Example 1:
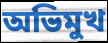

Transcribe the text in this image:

অভিমুখ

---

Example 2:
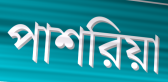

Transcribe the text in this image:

পাশরিয়া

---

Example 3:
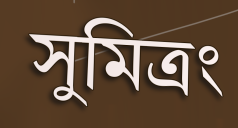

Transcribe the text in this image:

সুমিত্রং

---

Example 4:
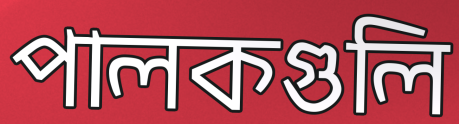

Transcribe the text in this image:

পালকগুলি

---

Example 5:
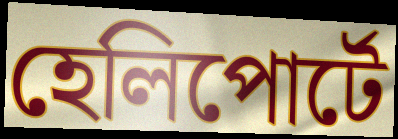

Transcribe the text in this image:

হেলিপোর্টে